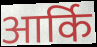
आर्कि